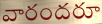
వారందరూ